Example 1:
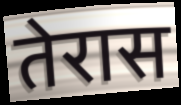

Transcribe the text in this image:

तेरास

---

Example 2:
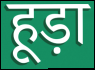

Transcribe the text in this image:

हूड़ा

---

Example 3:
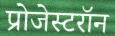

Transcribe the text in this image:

प्रोजेस्टरॉन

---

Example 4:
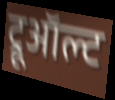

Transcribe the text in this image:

ट्रूऑल्ट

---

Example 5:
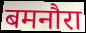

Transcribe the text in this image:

बमनौरा